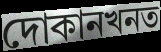
দোকানখনত